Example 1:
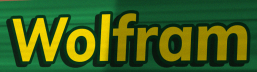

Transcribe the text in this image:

Wolfram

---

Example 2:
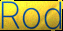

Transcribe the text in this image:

Rod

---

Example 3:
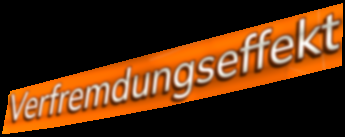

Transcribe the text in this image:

Verfremdungseffekt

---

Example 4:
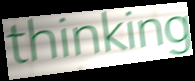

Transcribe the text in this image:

thinking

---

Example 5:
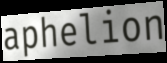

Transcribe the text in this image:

aphelion